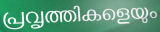
പ്രവൃത്തികളെയും